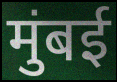
मुंबई